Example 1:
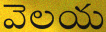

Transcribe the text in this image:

వెలయ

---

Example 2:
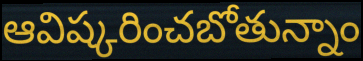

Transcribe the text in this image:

ఆవిష్కరించబోతున్నాం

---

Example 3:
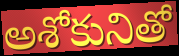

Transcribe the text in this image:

అశోకునితో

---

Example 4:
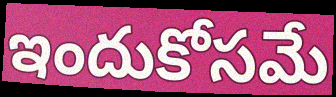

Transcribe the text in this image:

ఇందుకోసమే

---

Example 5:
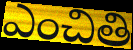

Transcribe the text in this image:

ఎంచితి